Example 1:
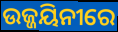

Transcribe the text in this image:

ଉଜ୍ଜୟିନୀରେ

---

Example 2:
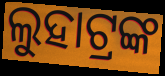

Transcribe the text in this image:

ଲୁହାଟ୍ରଙ୍କ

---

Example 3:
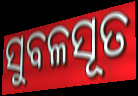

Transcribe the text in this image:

ସୁବଳସୂତ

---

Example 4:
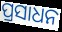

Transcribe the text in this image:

ପ୍ରସାଧନ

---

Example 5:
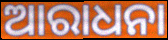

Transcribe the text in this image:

ଆରାଧନା